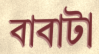
বাবাটা